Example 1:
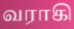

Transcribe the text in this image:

வராகி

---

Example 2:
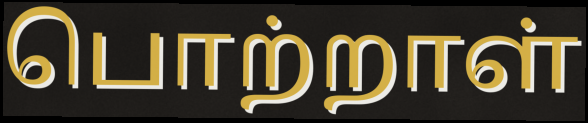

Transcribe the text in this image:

பொற்றாள்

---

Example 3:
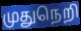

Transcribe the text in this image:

முதுநெறி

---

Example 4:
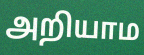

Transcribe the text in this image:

அறியாம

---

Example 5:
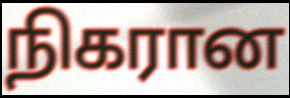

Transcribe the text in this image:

நிகரான